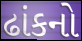
ઢાંકનો